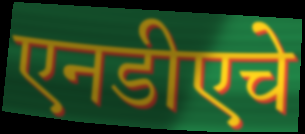
एनडीएचे